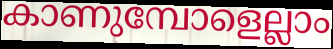
കാണുമ്പോളെല്ലാം